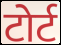
टोर्ट